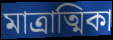
মাত্রাত্মিকা